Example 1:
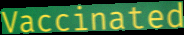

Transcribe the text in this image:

Vaccinated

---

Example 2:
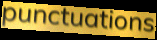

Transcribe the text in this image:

punctuations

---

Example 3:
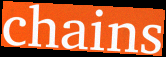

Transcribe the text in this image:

chains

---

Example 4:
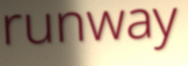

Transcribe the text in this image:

runway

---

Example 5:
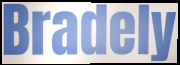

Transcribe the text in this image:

Bradely